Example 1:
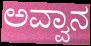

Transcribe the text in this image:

ಅವ್ವಾನ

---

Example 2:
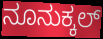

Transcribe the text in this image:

ನೂನುಕ್ಕಲ್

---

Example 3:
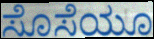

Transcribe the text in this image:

ಸೊಸೆಯೂ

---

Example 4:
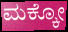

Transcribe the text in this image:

ಮಕ್ಕೋ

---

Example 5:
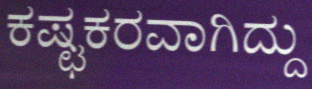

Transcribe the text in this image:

ಕಷ್ಟಕರವಾಗಿದ್ದು